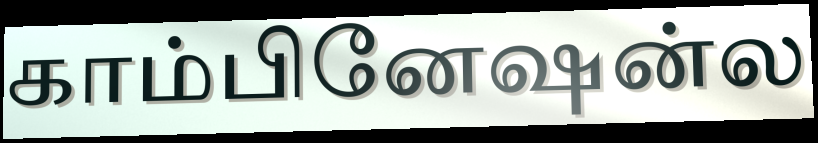
காம்பினேஷன்ல